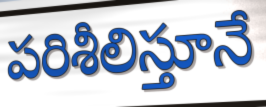
పరిశీలిస్తూనే